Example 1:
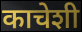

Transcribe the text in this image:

काचेशी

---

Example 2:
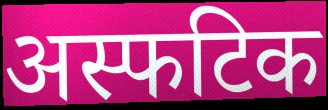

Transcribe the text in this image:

अस्फटिक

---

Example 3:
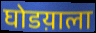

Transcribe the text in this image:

घोडय़ाला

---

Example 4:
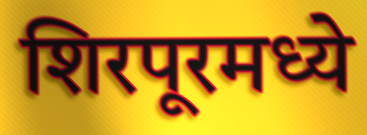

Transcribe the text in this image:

शिरपूरमध्ये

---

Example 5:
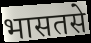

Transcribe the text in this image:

भासतसे